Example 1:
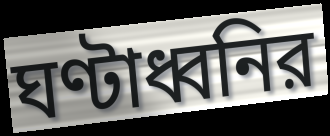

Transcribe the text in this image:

ঘণ্টাধ্বনির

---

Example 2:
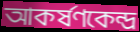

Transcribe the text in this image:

আকর্ষণকেন্দ্র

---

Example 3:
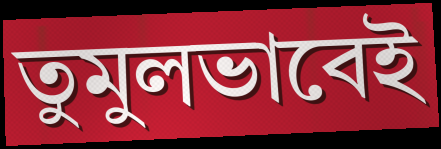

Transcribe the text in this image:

তুমুলভাবেই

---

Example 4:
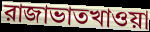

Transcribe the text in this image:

রাজাভাতখাওয়া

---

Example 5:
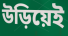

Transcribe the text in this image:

উড়িয়েই